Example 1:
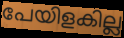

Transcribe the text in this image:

പേയിളകില്ല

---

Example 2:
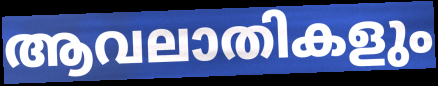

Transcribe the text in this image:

ആവലാതികളും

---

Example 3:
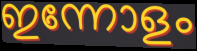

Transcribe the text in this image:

ഇന്നോളം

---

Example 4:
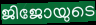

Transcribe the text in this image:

ജിജോയുടെ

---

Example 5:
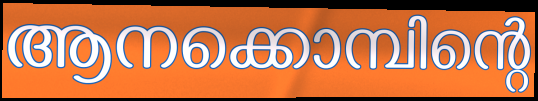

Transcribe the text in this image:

ആനക്കൊമ്പിന്റെ